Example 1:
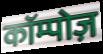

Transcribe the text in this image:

कॉम्पोज़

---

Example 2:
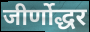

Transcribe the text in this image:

जीर्णोद्धर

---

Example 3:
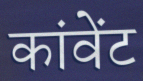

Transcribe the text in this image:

कांवेंट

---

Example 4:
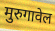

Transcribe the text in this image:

मुरुगावेल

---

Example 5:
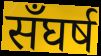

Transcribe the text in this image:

सँघर्ष